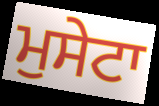
ਮੁਸੇਟਾ